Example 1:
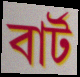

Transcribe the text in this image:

বাৰ্ট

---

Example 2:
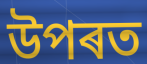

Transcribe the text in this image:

উপৰত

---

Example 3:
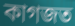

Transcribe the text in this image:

কাগজত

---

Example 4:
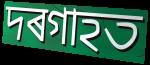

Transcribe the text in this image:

দৰগাহত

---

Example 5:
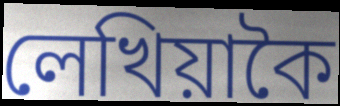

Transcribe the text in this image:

লেখিয়াকৈ